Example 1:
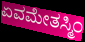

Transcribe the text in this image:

ಏವಮೇತಸ್ಮಿಂ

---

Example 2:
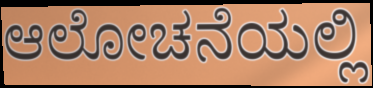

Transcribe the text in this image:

ಆಲೋಚನೆಯಲ್ಲಿ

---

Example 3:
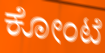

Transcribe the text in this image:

ಕೋಂಟೆ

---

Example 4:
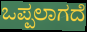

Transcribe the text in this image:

ಒಪ್ಪಲಾಗದೆ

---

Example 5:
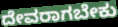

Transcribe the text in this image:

ದೇವರಾಗಬೇಕು